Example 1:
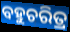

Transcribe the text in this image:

ବହୁଚରିତ୍ର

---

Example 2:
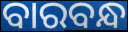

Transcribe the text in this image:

ବାରବନ୍ଧ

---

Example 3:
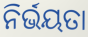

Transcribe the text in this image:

ନିର୍ଭୟତା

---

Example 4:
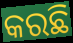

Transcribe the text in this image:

କରଛି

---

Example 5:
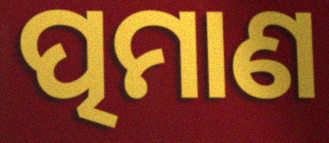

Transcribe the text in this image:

ତ୍ପମାଣ